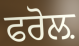
ਫਰੋਲ਼